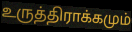
உருத்திராக்கமும்